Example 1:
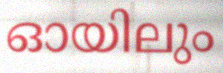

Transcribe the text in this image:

ഓയിലും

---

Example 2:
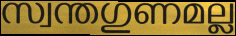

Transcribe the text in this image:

സ്വന്തഗുണമല്ല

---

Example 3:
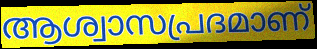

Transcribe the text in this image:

ആശ്വാസപ്രദമാണ്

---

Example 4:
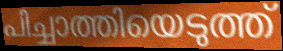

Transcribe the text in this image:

പിച്ചാത്തിയെടുത്ത്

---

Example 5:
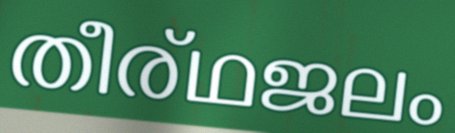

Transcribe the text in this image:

തീര്ഥജലം